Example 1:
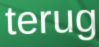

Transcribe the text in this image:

terug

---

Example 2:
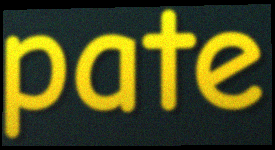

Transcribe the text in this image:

pate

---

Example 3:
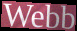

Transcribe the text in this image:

Webb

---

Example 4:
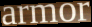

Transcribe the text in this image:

armor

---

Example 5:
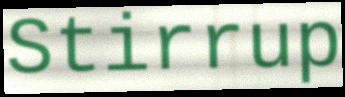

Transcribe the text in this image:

Stirrup